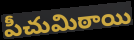
పీచుమిఠాయి